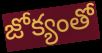
జోక్యంతో